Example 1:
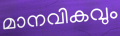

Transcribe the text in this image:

മാനവികവും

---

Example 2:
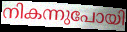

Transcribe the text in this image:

നികന്നുപോയി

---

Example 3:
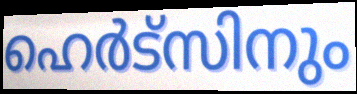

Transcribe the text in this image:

ഹെർട്സിനും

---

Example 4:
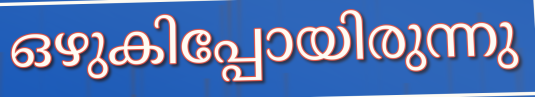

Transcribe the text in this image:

ഒഴുകിപ്പോയിരുന്നു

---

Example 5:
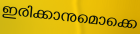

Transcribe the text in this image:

ഇരിക്കാനുമൊക്കെ